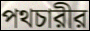
পথচারীর